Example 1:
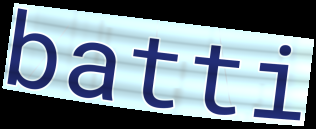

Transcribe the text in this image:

batti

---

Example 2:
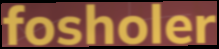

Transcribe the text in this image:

fosholer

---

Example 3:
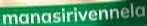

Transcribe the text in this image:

manasirivennela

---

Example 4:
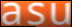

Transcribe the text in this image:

asu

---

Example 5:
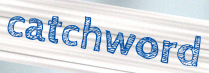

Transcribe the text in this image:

catchword